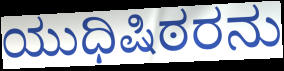
ಯುಧಿಷಿಠರನು